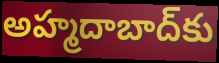
అహ్మదాబాద్‌కు